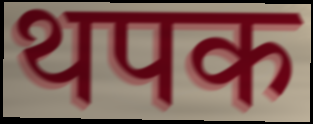
थपक